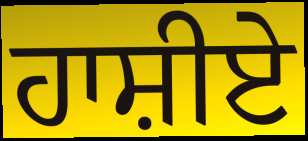
ਹਾਸ਼ੀਏ